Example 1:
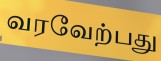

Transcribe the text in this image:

வரவேற்பது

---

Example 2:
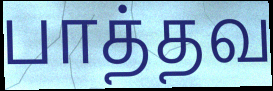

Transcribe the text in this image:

பாத்தவ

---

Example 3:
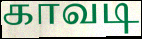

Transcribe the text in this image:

காவடி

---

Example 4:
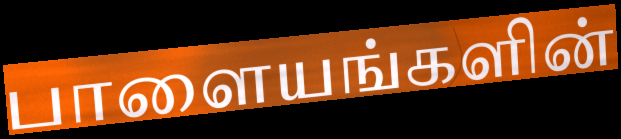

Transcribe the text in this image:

பாளையங்களின்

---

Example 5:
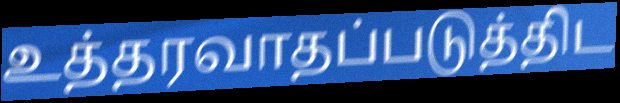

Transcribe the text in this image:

உத்தரவாதப்படுத்திட